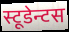
स्टूडेन्टस